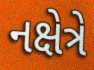
નક્ષેત્રે